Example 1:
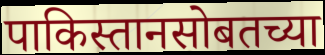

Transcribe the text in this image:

पाकिस्तानसोबतच्या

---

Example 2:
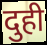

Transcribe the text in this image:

दुही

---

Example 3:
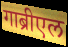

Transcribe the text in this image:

गाब्रीएल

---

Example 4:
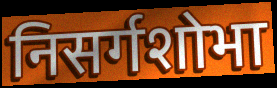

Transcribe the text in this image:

निसर्गशोभा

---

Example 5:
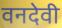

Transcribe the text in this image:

वनदेवी